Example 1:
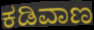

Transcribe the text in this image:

ಕಡಿವಾಣ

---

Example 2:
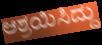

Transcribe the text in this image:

ಆಶ್ರಯಿಸಿದ್ದು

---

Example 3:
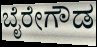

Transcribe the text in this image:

ಬೈರೇಗೌಡ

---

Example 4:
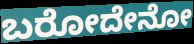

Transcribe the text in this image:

ಬರೋದೇನೋ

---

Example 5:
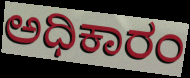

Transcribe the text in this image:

ಅಧಿಕಾರಂ